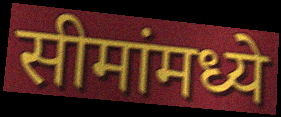
सीमांमध्ये